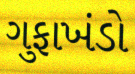
ગુફાખંડો